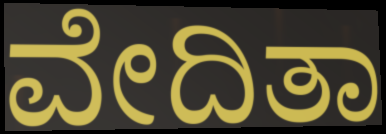
ವೇದಿತಾ